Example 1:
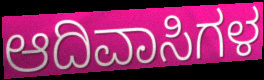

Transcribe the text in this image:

ಆದಿವಾಸಿಗಳ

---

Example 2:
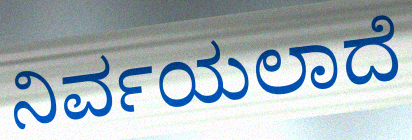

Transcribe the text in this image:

ನಿರ್ವಯಲಾದೆ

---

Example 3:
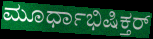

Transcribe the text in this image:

ಮೂರ್ಧಾಭಿಷಿಕ್ತರ್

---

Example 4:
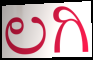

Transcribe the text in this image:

ಲಗಿ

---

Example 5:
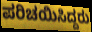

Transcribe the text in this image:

ಪರಿಚಯಿಸಿದ್ದರು